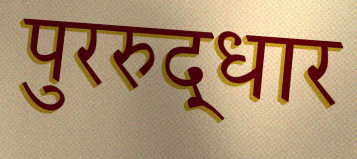
पुररुद्धार